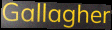
Gallagher